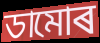
ডামোৰ